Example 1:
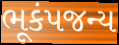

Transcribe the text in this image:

ભૂકંપજન્ય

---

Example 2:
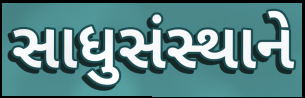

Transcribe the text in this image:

સાધુસંસ્થાને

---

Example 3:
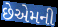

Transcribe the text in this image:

છેએમની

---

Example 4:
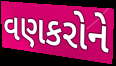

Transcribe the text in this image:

વણકરોને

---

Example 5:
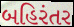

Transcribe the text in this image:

બહિરંતર